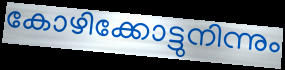
കോഴിക്കോട്ടുനിന്നും